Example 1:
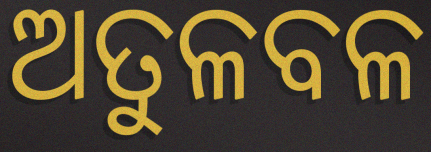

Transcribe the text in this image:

ଅତୁଳବଳ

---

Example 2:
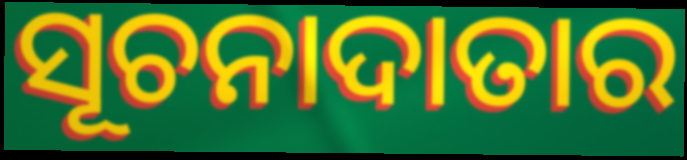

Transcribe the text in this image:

ସୂଚନାଦାତାର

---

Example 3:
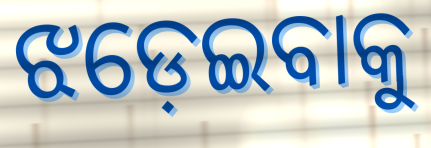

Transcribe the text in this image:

ଝଡ଼େଇବାକୁ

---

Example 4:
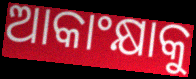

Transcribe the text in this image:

ଆକାଂକ୍ଷାକୁ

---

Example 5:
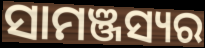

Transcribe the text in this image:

ସାମଞ୍ଜସ୍ୟର